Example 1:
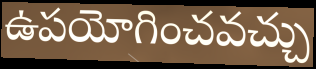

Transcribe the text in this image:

ఉపయోగించవచ్చు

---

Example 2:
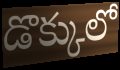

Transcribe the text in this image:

డొక్కులో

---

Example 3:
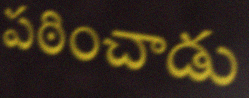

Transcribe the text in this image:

పఠించాడు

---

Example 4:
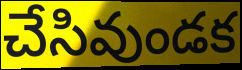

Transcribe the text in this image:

చేసివుండక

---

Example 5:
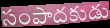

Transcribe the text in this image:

సంపాదకుడు